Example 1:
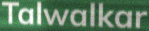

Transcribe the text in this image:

Talwalkar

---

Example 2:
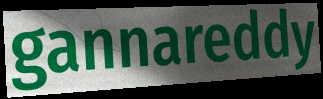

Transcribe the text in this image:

gannareddy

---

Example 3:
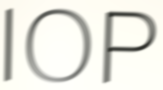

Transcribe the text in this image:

IOP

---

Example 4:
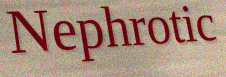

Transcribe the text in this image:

Nephrotic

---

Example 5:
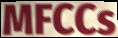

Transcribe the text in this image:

MFCCs